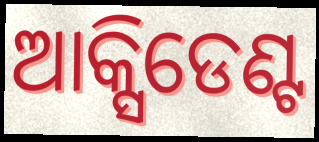
ଆକ୍ସିଡେଣ୍ଟ